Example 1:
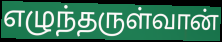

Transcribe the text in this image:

எழுந்தருள்வான்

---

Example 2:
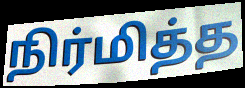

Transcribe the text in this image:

நிர்மித்த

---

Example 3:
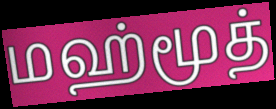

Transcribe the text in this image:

மஹ்மூத்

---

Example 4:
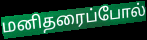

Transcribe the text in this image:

மனிதரைப்போல்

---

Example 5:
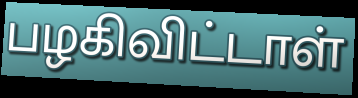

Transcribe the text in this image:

பழகிவிட்டாள்